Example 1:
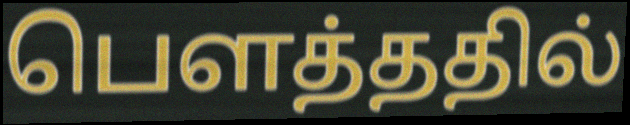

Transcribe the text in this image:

பௌத்ததில்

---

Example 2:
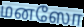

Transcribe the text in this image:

மனஸோ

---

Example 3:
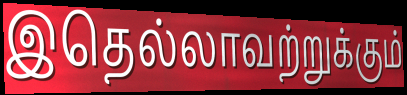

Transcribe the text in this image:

இதெல்லாவற்றுக்கும்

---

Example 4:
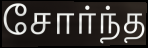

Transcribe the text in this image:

சோர்ந்த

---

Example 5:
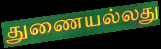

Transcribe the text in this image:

துணையல்லது